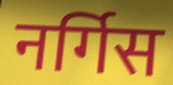
नर्गिस